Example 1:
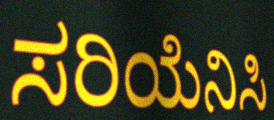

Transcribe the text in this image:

ಸರಿಯೆನಿಸಿ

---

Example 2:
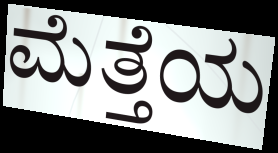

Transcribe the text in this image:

ಮೆತ್ತೆಯ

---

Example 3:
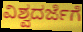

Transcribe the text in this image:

ವಿಶ್ವದರ್ಜೆಗೆ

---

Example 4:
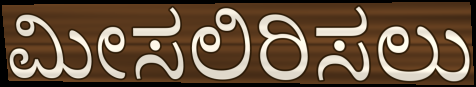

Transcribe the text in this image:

ಮೀಸಲಿರಿಸಲು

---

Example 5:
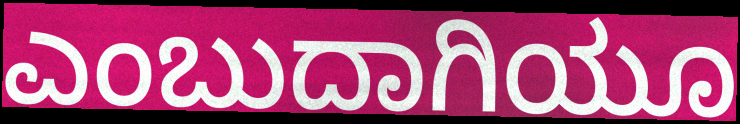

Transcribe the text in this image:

ಎಂಬುದಾಗಿಯೂ